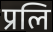
प्रलि